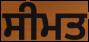
ਸੀਮਤ